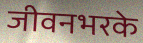
जीवनभरके